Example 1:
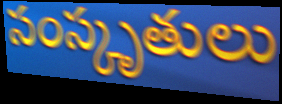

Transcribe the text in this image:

సంస్కృతులు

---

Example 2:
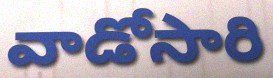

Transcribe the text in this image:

వాడోసారి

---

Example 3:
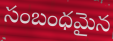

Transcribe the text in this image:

సంబంధమైన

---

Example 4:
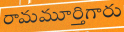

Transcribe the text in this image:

రామమూర్తిగారు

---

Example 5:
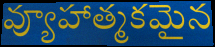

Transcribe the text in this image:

వ్యూహాత్మకమైన